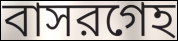
বাসরগেহ